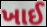
ખાઈ